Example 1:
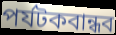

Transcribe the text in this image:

পর্যটকবান্ধব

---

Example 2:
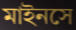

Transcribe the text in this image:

মাইনসে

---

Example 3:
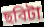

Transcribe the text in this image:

ছবিটা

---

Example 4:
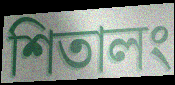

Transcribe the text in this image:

শিতালং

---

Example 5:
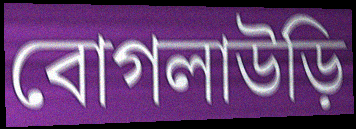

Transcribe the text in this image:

বোগলাউড়ি